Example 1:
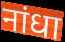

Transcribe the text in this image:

नांधा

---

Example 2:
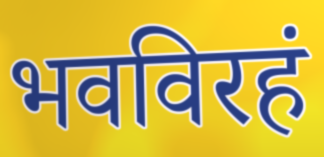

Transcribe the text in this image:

भवविरहं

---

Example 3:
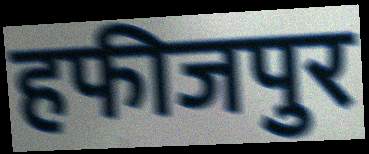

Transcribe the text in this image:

हफीजपुर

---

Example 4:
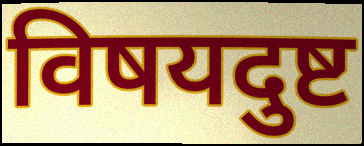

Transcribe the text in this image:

विषयदुष्ट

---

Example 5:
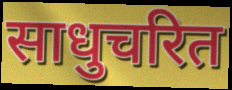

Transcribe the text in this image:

साधुचरित